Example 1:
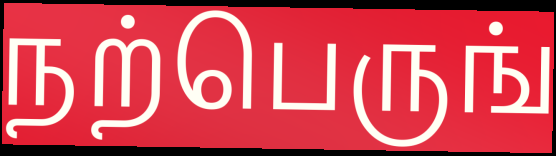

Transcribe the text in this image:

நற்பெருங்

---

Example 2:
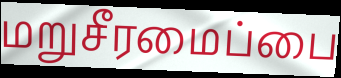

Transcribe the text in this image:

மறுசீரமைப்பை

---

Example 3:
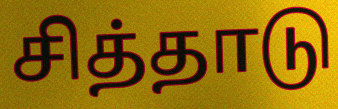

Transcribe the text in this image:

சித்தாடு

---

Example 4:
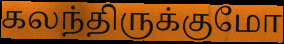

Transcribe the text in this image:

கலந்திருக்குமோ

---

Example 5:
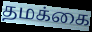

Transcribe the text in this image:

தமக்கை